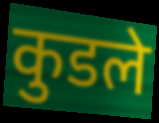
कुडले